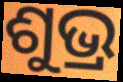
ଶୁଭ୍ର